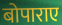
बोपाराए